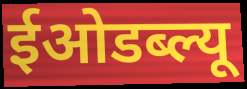
ईओडब्ल्यू